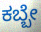
ಕಬ್ಬೇ